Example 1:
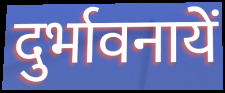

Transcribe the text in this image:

दुर्भावनायें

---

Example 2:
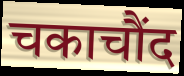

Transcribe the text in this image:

चकाचौंद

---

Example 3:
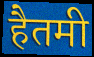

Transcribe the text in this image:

हैतमी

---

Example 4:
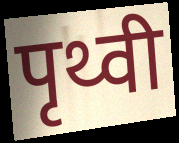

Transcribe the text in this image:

पृथ्वी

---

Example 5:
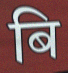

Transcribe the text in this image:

बि